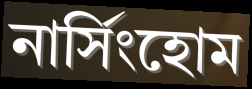
নার্সিংহোম